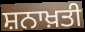
ਸ਼ਨਾਖ਼ਤੀ